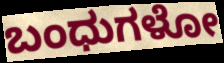
ಬಂಧುಗಳೋ